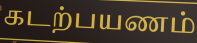
கடற்பயணம்